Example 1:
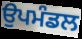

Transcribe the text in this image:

ਉਪਮੰਡਲ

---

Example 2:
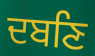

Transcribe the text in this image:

ਦਬਣਿ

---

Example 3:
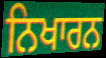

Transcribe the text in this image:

ਨਿਖਾਰਨ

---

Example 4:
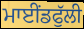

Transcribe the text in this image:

ਮਾਈਂਡਫੁੱਲੀ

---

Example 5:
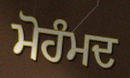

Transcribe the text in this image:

ਮੋਹੰਮਦ